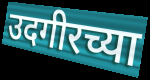
उदगीरच्या